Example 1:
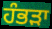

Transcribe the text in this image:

ਹੰਭੜਾ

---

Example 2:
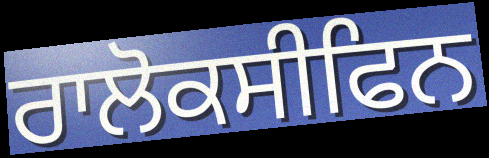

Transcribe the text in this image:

ਰਾਲੋਕਸੀਫਿਨ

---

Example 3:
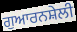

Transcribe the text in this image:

ਗੁਆਰਨਸ਼ੇਲੀ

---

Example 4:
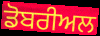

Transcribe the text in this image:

ਡੋਬਰੀਅਲ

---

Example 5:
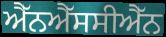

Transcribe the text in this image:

ਐੱਨਐੱਸਸੀਐੱਨ